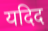
यदिद